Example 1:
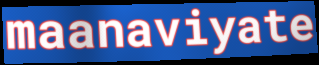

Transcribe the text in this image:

maanaviyate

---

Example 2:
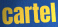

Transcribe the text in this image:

cartel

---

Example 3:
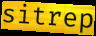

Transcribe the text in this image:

sitrep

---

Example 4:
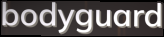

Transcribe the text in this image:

bodyguard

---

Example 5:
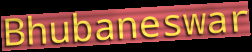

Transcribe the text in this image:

Bhubaneswar